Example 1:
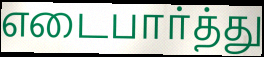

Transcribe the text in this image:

எடைபார்த்து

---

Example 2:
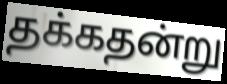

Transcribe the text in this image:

தக்கதன்று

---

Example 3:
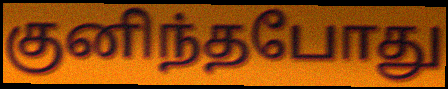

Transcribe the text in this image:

குனிந்தபோது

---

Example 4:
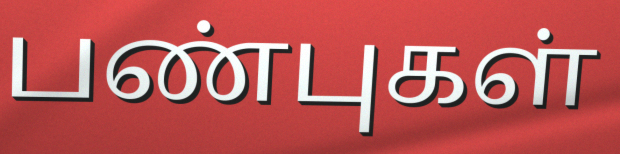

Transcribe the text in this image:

பண்புகள்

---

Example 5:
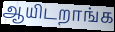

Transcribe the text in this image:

ஆயிடறாங்க